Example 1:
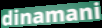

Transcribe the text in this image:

dinamani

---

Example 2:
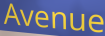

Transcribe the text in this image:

Avenue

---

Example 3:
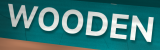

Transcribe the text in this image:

WOODEN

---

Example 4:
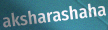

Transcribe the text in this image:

aksharashaha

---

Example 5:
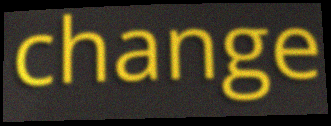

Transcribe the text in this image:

change